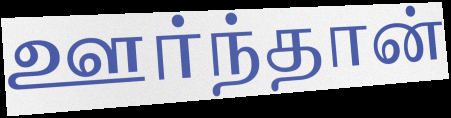
ஊர்ந்தான்